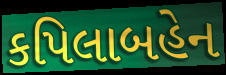
કપિલાબહેન